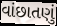
વાંછાતણું